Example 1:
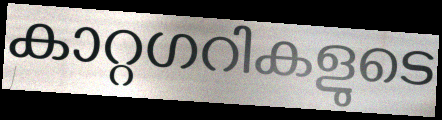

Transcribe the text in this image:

കാറ്റഗറികളുടെ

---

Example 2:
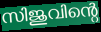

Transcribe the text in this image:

സിജുവിന്റെ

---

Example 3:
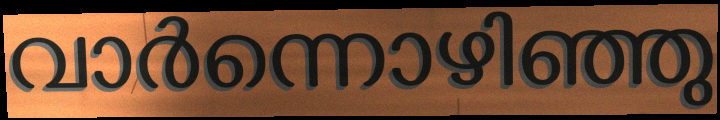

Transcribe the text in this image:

വാർന്നൊഴിഞ്ഞു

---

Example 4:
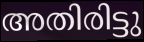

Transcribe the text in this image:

അതിരിട്ടു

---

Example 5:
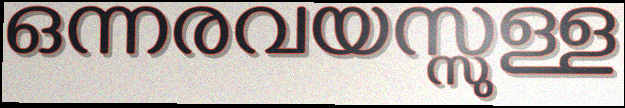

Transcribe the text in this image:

ഒന്നരവയസ്സുള്ള